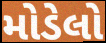
મોડેલો